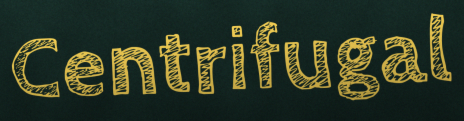
Centrifugal